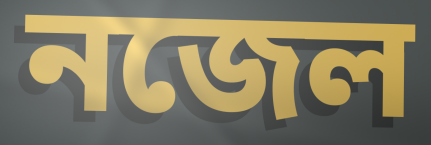
নজেল